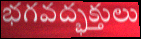
భగవద్భక్తులు